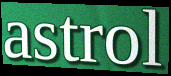
astrol